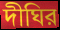
দীঘির